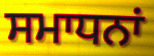
ਸਮਾਧਨਾਂ